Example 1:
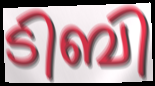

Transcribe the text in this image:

ടിബി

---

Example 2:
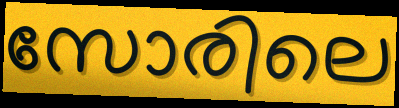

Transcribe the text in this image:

സോരിലെ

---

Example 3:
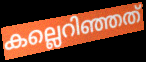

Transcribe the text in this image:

കല്ലെറിഞ്ഞത്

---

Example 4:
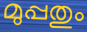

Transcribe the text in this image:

മുപ്പതും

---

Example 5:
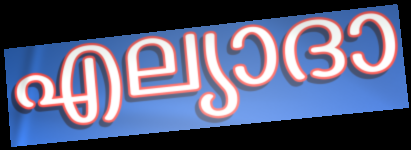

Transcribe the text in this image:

എല്യാദാ